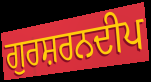
ਗੁਰਸ਼ਰਨਦੀਪ